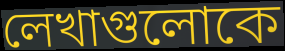
লেখাগুলোকে